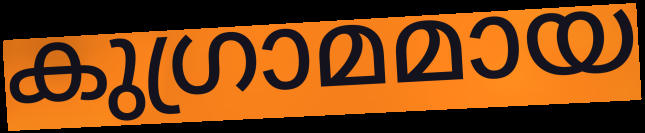
കുഗ്രാമമായ